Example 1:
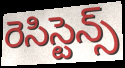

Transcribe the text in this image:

రెసిస్టెన్స్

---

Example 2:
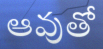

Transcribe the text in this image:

ఆవుతో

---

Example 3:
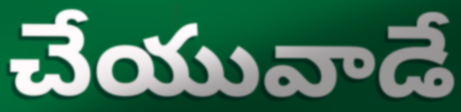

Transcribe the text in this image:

చేయువాడే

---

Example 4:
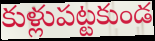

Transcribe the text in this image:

కుళ్లుపట్టకుండ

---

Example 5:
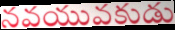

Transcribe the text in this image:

నవయువకుడు